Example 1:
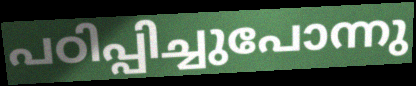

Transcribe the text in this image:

പഠിപ്പിച്ചുപോന്നു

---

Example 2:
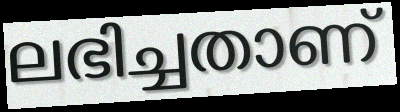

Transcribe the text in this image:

ലഭിച്ചതാണ്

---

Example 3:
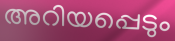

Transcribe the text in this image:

അറിയപ്പെടും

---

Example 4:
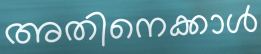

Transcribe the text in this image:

അതിനെക്കാൾ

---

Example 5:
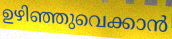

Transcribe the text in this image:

ഉഴിഞ്ഞുവെക്കാൻ